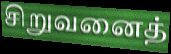
சிறுவனைத்